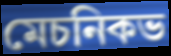
মেচনিকভ